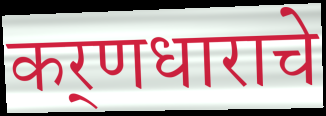
कर्णधाराचे